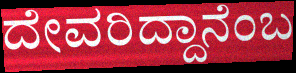
ದೇವರಿದ್ದಾನೆಂಬ